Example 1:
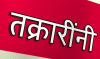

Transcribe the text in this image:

तक्रारींनी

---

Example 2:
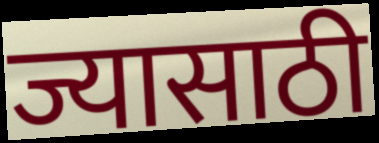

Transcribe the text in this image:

ज्यासाठी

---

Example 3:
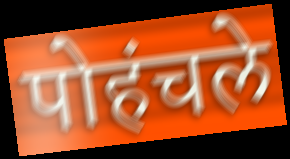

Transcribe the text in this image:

पोहंचले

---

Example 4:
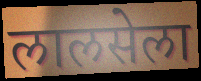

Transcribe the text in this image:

लालसेला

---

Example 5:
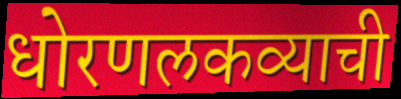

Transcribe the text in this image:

धोरणलकव्याची